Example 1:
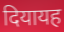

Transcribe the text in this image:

दियायह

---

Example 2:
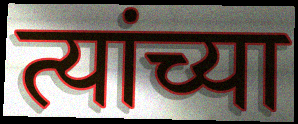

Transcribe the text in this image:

त्यांच्या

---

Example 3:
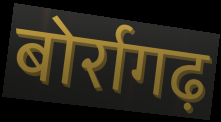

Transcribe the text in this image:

बोर्रागढ़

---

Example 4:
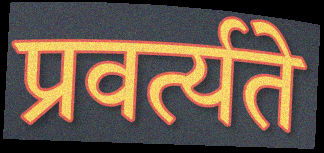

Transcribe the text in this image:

प्रवर्त्यते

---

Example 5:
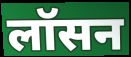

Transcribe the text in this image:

लॉसन